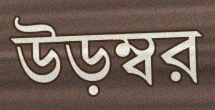
উড়ম্বর